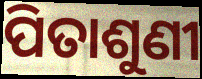
ପିତାଶୁଣୀ